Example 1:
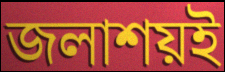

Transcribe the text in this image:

জলাশয়ই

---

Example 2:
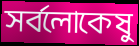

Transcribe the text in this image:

সর্বলোকেষু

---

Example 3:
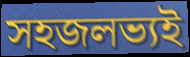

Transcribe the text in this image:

সহজলভ্যই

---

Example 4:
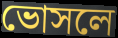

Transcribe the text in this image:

ভোসলে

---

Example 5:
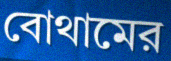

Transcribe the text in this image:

বোথামের